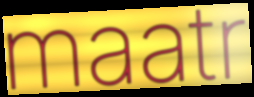
maatr